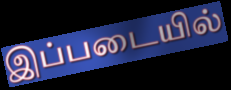
இப்படையில்